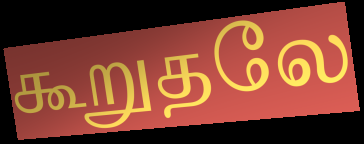
கூறுதலே